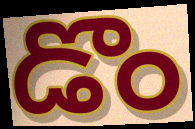
డొం